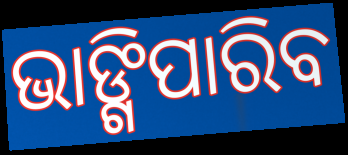
ଭାଙ୍ଗିପାରିବ